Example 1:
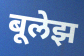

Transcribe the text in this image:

बूलेझ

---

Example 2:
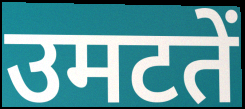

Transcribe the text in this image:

उमटतें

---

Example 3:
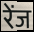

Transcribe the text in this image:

रेंज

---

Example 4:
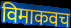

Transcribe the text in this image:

विमाकवच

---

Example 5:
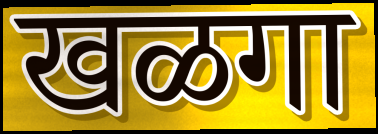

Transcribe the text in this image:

खळगा